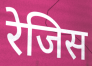
रेजिस